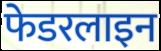
फेडरलाइन